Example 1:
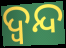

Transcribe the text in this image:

ଦ୍ଵନ୍ଦ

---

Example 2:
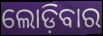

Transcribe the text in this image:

ଲୋଡ଼ିବାର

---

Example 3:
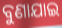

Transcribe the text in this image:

ବୁଣାଯାଇ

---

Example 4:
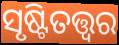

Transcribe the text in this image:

ସୃଷ୍ଟିତତ୍ତ୍ୱର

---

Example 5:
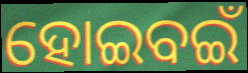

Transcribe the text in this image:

ହୋଇବଇଁ